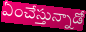
ఏంచేస్తున్నాడో